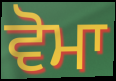
ਵੋਮਾ